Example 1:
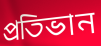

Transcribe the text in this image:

প্রতিভান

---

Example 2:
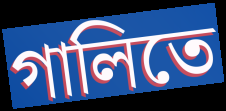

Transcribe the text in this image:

গালিতে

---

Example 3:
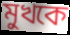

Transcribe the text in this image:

মুখকে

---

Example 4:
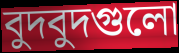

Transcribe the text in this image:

বুদবুদগুলো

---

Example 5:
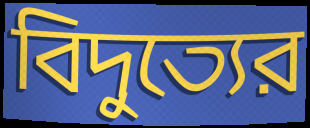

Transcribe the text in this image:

বিদুত্যের